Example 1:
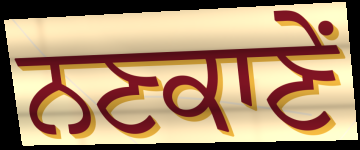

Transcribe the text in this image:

ਨਣਕਾਣੇਂ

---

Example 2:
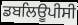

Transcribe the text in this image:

ਡਬਲਿਊਪੀਸੀ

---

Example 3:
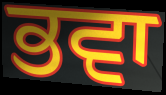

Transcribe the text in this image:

ਭਵਾ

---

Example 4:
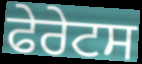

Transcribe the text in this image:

ਫੇਰੇਟਸ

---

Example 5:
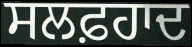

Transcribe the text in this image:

ਸਲਫ਼ਹਾਦ